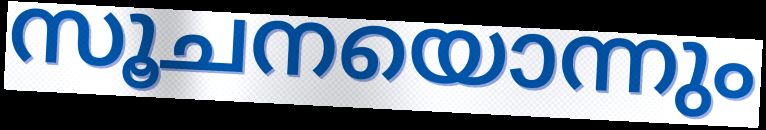
സൂചനയൊന്നും